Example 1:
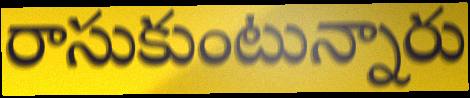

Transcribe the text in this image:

రాసుకుంటున్నారు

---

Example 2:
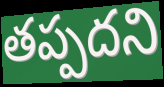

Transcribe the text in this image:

తప్పదని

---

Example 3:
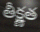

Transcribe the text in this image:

తీక్ష్ణత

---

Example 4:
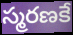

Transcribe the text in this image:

స్మరణకే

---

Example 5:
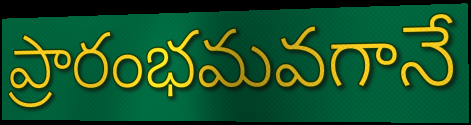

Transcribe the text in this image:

ప్రారంభమవగానే